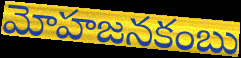
మోహజనకంబు